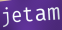
jetam